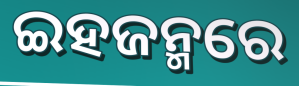
ଇହଜନ୍ମରେ